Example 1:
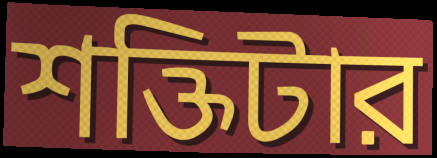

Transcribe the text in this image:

শক্তিটার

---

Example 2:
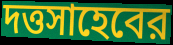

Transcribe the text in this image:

দত্তসাহেবের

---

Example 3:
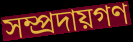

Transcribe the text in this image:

সম্প্রদায়গণ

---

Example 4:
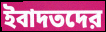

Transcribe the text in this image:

ইবাদতদের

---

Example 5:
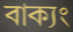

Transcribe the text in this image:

বাক্যং